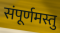
संपूर्णमस्तु